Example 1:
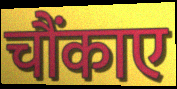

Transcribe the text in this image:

चौंकाए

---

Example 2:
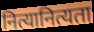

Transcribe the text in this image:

नित्यानित्यता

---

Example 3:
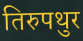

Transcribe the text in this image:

तिरुपथुर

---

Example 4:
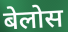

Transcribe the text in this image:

बेलोस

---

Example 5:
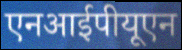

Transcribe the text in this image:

एनआईपीयूएन